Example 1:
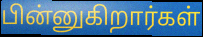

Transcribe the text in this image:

பின்னுகிறார்கள்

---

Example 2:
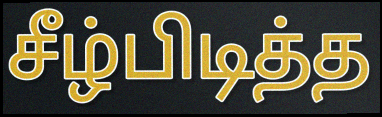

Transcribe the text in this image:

சீழ்பிடித்த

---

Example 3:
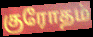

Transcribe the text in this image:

குரோதம்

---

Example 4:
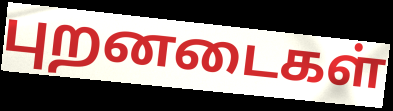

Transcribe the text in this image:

புறனடைகள்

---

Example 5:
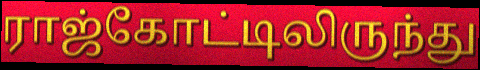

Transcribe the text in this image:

ராஜ்கோட்டிலிருந்து